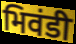
भिवंडी